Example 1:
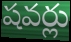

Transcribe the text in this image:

షవర్లు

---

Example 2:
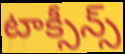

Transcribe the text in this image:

టాక్సీన్స్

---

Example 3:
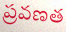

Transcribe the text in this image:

ప్రవణత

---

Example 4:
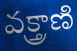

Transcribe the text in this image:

వక్త్రాణి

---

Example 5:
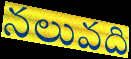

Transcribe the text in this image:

నలువది